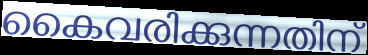
കൈവരിക്കുന്നതിന്